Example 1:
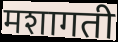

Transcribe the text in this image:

मशागती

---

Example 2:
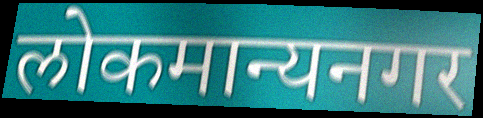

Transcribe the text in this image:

लोकमान्यनगर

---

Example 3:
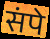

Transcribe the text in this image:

संपे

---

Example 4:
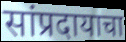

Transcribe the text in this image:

सांप्रदायाचा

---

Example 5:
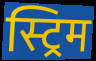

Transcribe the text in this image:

स्ट्रिम